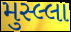
મુસ્લ્લા